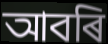
আবৰি